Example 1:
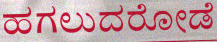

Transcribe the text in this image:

ಹಗಲುದರೋಡೆ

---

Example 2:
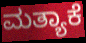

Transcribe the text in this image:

ಮತ್ಯಾಕೆ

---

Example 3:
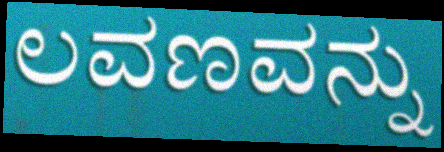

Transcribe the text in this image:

ಲವಣವನ್ನು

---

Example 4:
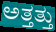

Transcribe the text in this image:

ಅತ್ತತ್ತು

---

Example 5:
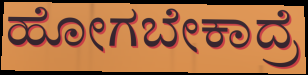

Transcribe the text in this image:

ಹೋಗಬೇಕಾದ್ರೆ